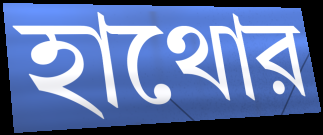
হাথোর